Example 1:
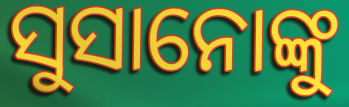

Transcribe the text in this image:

ସୁସାନୋଙ୍କୁ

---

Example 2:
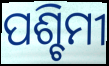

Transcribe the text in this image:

ପଶ୍ଚିମୀ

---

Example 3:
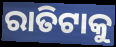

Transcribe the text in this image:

ରାତିଟାକୁ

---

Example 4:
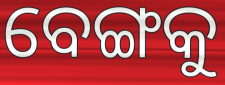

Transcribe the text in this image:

ବେଙ୍ଗକୁ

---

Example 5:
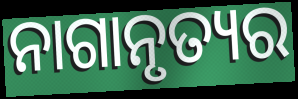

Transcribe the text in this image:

ନାଗାନୃତ୍ୟର